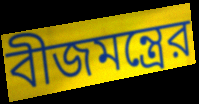
বীজমন্ত্রের